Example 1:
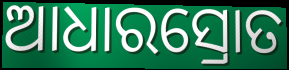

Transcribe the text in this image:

ଆଧାରସ୍ରୋତ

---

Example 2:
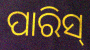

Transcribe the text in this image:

ପାରିସ୍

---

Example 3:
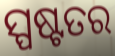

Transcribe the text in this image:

ସ୍ପଷ୍ଟତର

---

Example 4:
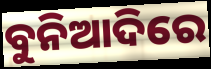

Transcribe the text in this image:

ବୁନିଆଦିରେ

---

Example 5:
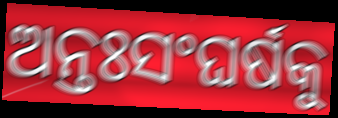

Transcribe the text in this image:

ଅନ୍ତଃସଂଘର୍ଷକୁ